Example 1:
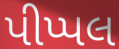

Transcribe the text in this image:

પીપ્પલ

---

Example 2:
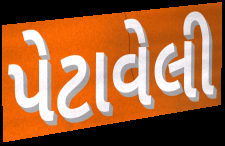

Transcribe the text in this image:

પેટાવેલી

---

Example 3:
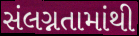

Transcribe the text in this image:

સંલગ્નતામાંથી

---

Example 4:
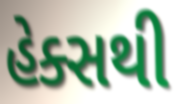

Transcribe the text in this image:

હેક્સથી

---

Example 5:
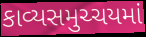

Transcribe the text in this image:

કાવ્યસમુચ્ચયમાં